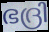
ഭദ്രി